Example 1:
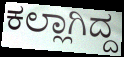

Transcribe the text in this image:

ಕಲ್ಲಾಗಿದ್ದ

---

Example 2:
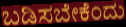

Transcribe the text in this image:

ಬಡಿಸಬೇಕೆಂದು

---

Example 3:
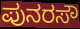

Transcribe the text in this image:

ಪುನರಸೌ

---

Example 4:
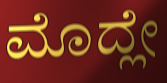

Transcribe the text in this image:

ಮೊದ್ಲೇ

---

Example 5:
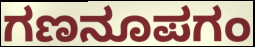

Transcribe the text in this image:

ಗಣನೂಪಗಂ